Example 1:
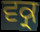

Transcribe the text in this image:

ਵਕ੍ਰ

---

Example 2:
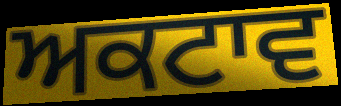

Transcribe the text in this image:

ਅਕਟਾਵ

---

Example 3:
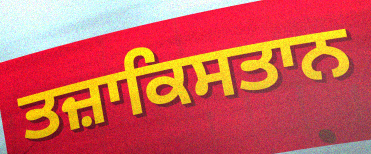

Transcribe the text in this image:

ਤਜ਼ਾਕਿਸਤਾਨ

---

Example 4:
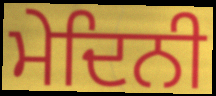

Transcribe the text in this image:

ਮੇਦਿਨੀ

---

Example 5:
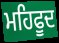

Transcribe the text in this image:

ਮਹਿਫੂਦ